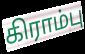
கிராம்பு